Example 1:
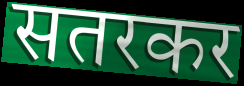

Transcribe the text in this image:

सतरकर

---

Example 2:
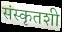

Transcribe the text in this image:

संस्कृतशी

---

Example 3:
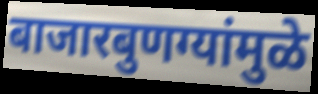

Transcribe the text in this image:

बाजारबुणग्यांमुळे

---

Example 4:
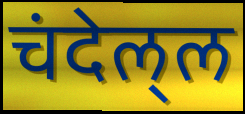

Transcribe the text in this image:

चंदेल्ल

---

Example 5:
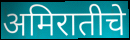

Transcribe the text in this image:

अमिरातीचे